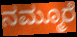
ನಮ್ಮೂರೆ